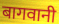
बागवानी